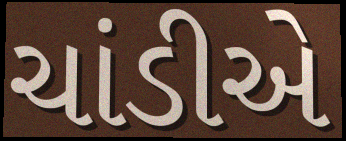
ચાંડીએ